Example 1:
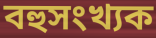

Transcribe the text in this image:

বহুসংখ্যক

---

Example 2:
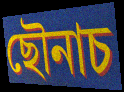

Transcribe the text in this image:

ছৌনাচ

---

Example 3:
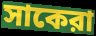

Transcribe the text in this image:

সাকেরা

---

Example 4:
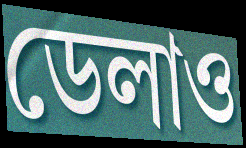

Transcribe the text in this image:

ডেলাও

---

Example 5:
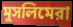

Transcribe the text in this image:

মুসলিমেরা